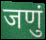
जणुं